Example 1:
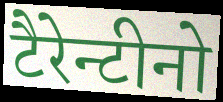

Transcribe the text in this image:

टैरेन्टीनो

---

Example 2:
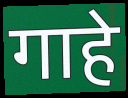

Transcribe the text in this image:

गाहे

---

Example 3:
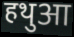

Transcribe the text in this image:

हथुआ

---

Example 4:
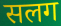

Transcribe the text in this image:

सलग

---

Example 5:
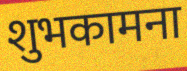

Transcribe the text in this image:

शुभकामना